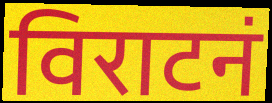
विराटनं